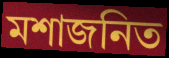
মশাজনিত